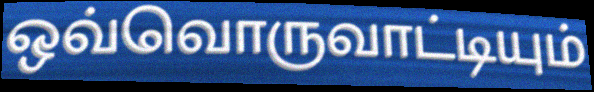
ஒவ்வொருவாட்டியும்